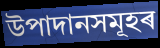
উপাদানসমূহৰ